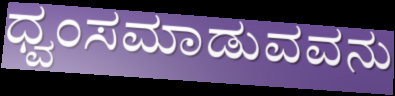
ಧ್ವಂಸಮಾಡುವವನು